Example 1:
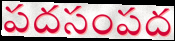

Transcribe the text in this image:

పదసంపద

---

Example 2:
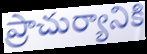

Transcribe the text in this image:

ప్రాచుర్యానికి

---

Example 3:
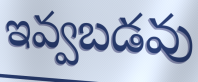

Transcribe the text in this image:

ఇవ్వబడవు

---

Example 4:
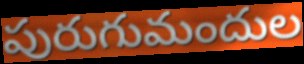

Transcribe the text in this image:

పురుగుమందుల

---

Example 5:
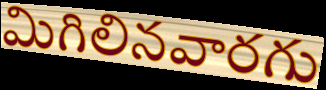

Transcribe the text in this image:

మిగిలినవారగు